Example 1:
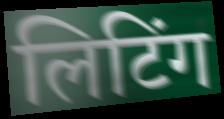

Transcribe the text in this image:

लिटिंग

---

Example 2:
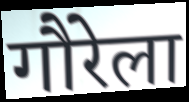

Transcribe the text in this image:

गौरेला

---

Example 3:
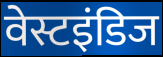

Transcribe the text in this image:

वेस्टइंडिज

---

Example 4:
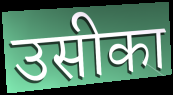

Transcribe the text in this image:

उसीका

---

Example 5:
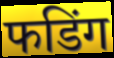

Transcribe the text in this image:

फडिंग